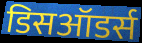
डिसऑडर्स